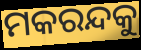
ମକରନ୍ଦକୁ